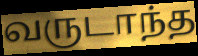
வருடாந்த